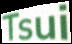
Tsui